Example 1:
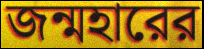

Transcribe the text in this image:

জন্মহারের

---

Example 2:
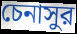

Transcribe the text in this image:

চেনাসুর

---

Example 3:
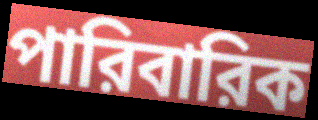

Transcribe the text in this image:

পারিবারিক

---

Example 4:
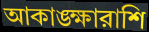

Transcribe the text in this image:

আকাঙ্ক্ষারাশি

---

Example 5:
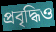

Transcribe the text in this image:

প্রবৃদ্ধিও